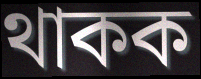
থাকক